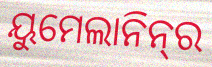
ୟୁମେଲାନିନ୍‌ର